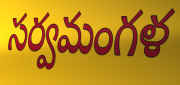
సర్వమంగళ